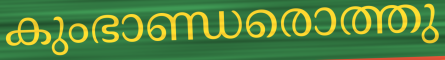
കുംഭാണ്ഡരൊത്തു